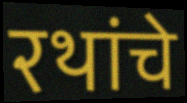
रथांचे